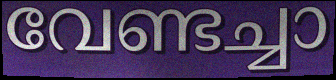
വേണ്ടച്ചാ